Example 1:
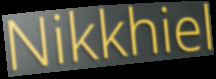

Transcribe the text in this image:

Nikkhiel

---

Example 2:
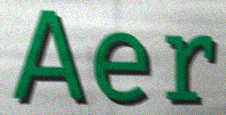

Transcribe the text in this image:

Aer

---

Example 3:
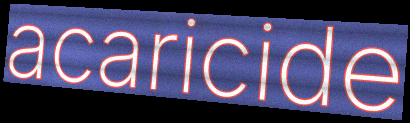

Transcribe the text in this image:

acaricide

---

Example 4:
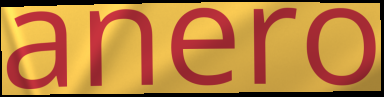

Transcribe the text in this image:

anero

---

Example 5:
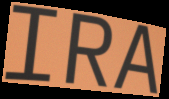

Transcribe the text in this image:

IRA